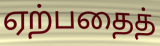
ஏற்பதைத்